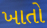
ખાતો